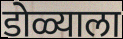
डोळ्याला